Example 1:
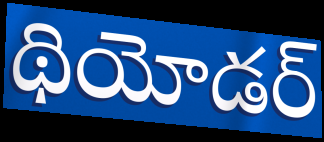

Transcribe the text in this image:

థియోడర్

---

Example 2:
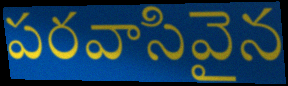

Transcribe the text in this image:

పరవాసివైన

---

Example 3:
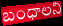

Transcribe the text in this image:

బంధాలని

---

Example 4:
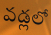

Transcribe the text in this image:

వడ్లలో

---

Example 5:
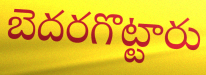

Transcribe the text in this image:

బెదరగొట్టారు